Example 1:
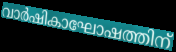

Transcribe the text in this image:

വാർഷികാഘോഷത്തിന്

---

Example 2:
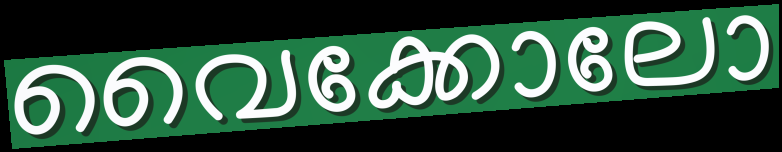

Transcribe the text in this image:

വൈക്കോലോ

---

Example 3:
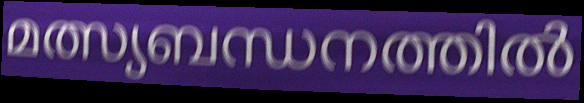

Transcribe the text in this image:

മത്സ്യബന്ധനത്തിൽ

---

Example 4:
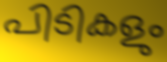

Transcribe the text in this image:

പിടികളും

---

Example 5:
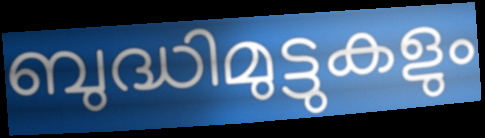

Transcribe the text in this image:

ബുദ്ധിമുട്ടുകളും